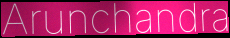
Arunchandra